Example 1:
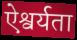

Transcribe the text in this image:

ऐश्वर्यता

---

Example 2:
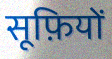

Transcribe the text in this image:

सूफ़ियों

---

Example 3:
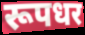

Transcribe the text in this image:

रूपधर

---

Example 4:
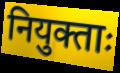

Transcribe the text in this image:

नियुक्ताः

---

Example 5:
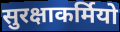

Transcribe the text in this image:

सुरक्षाकर्मियो